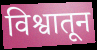
विश्वातून